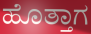
ಹೊತ್ತಾಗ